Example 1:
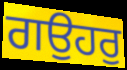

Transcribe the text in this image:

ਗਉਹਰੁ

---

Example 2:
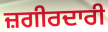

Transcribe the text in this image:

ਜ਼ਗੀਰਦਾਰੀ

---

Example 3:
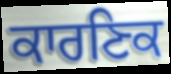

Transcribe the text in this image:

ਕਾਰਣਿਕ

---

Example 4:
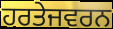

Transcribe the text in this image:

ਹਰਤੇਜਵਰਨ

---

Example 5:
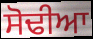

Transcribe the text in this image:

ਸੋਢੀਆ